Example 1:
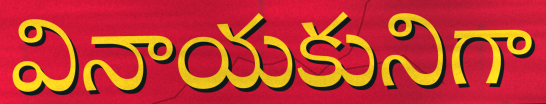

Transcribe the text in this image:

వినాయకునిగా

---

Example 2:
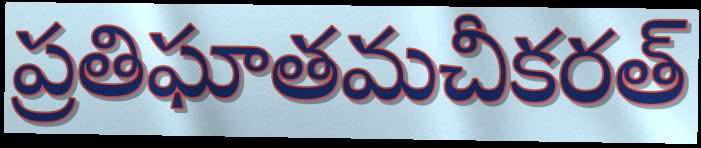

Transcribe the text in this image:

ప్రతిఘాతమచీకరత్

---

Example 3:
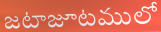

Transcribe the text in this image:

జటాజూటములో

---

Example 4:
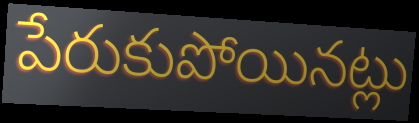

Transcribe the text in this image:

పేరుకుపోయినట్లు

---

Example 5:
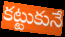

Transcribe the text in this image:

కట్టుకునే